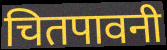
चितपावनी